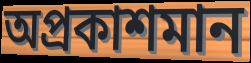
অপ্রকাশমান